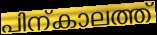
പിന്കാലത്ത്